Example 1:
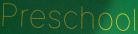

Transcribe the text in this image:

Preschool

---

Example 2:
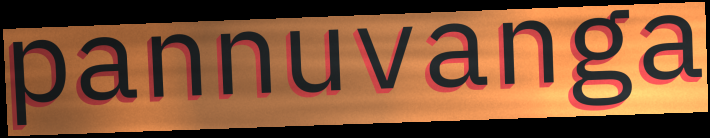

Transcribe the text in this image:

pannuvanga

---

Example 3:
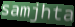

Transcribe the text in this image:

samjhta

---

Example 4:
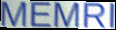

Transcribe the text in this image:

MEMRI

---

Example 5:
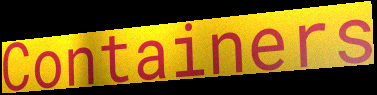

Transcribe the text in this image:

Containers